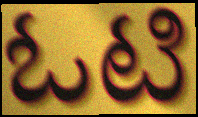
ಓಟಿ